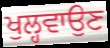
ਖੁਲ੍ਹਵਾਉਣ